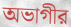
অভাগীর